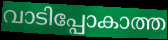
വാടിപ്പോകാത്ത